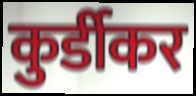
कुर्डीकर